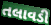
તલાવડી